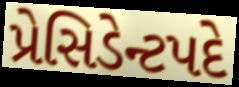
પ્રેસિડેન્ટપદે